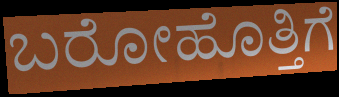
ಬರೋಹೊತ್ತಿಗೆ